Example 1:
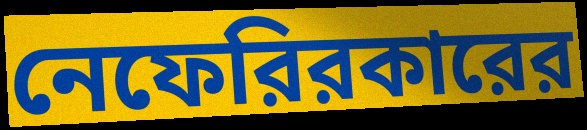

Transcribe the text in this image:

নেফেরিরকারের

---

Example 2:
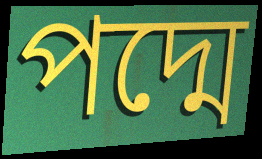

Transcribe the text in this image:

পদ্মে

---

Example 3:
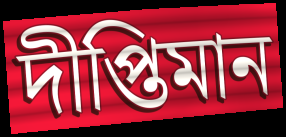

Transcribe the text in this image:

দীপ্তিমান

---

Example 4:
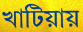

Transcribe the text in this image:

খাটিয়ায়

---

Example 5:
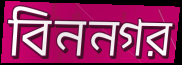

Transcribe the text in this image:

বিননগর